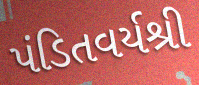
પંડિતવર્યશ્રી